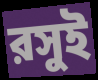
রসুই